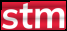
stm